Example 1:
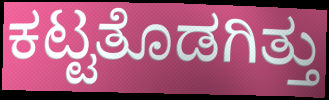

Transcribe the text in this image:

ಕಟ್ಟತೊಡಗಿತ್ತು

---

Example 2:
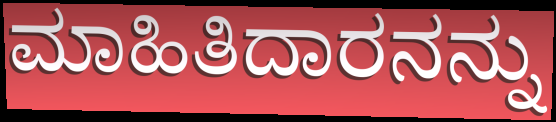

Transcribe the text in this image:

ಮಾಹಿತಿದಾರನನ್ನು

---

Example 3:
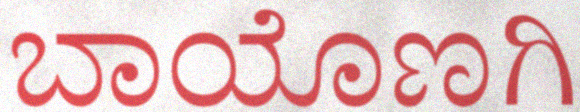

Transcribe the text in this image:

ಬಾಯೊಣಗಿ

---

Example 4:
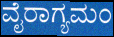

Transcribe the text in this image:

ವೈರಾಗ್ಯಮಂ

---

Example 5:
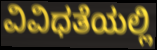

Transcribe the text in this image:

ವಿವಿಧತೆಯಲ್ಲಿ